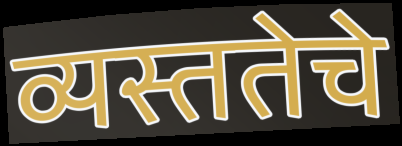
व्यस्ततेचे